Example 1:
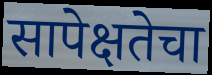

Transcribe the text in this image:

सापेक्षतेचा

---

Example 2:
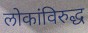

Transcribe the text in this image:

लोकांविरुद्ध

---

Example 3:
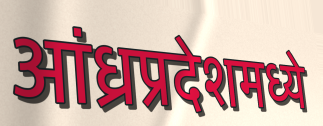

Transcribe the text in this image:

आंध्रप्रदेशमध्ये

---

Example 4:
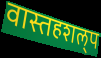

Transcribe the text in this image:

वास्तहशल्प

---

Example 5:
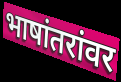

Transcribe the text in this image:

भाषांतरांवर